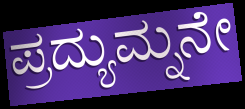
ಪ್ರದ್ಯುಮ್ನನೇ